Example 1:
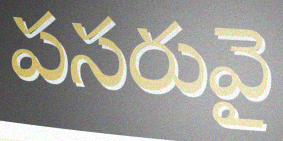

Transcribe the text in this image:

పసరువై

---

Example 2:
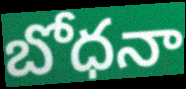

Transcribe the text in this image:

బోధనా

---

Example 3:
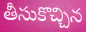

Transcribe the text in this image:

తీసుకొచ్చిన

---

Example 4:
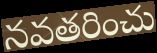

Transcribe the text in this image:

నవతరించు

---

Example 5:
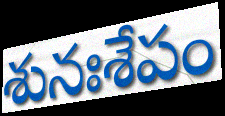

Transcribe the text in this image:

శునఃశేపం